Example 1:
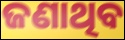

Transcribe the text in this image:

ଜଣାଥିବ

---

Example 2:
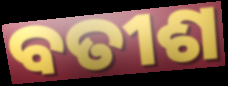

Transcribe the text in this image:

ବତୀଶ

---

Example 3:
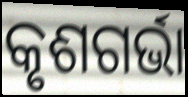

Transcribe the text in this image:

କୃଶଗର୍ଭା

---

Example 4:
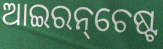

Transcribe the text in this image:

ଆଇରନ୍‌ଚେଷ୍ଟ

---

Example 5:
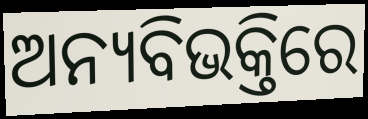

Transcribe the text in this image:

ଅନ୍ୟବିଭକ୍ତିରେ